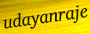
udayanraje